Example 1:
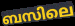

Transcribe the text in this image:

ബസിലെ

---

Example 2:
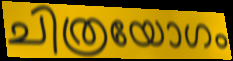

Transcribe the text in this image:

ചിത്രയോഗം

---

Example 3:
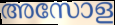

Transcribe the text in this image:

അസോള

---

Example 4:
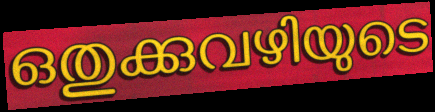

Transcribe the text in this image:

ഒതുക്കുവഴിയുടെ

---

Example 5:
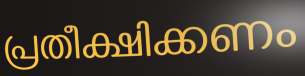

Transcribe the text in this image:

പ്രതീക്ഷിക്കണം